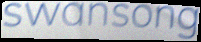
swansong